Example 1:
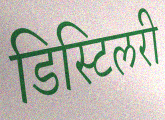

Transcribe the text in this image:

डिस्टिलरी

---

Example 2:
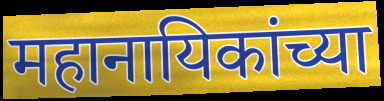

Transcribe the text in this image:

महानायिकांच्या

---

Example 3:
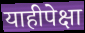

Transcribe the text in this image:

याहीपेक्षा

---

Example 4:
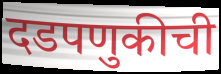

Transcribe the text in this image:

दडपणुकीची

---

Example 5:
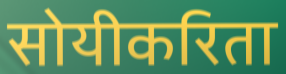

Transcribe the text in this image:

सोयीकरिता